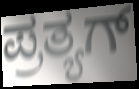
ಪ್ರತ್ಯಗ್